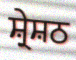
ਸ਼੍ਰੇਸ਼ਠ